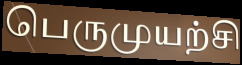
பெருமுயற்சி